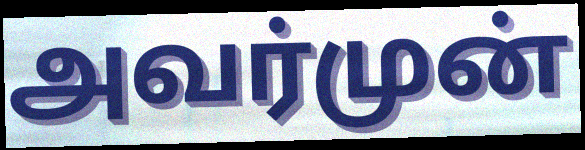
அவர்முன்